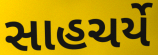
સાહચર્યે